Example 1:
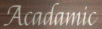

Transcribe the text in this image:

Acadamic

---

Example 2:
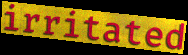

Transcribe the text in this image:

irritated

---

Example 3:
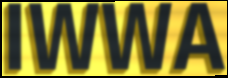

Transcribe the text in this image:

IWWA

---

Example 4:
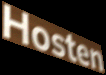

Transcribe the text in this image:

Hosten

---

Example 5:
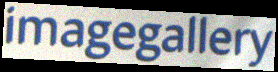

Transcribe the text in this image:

imagegallery